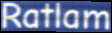
Ratlam